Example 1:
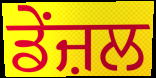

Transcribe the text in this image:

ਡੇਂਜ਼ਲ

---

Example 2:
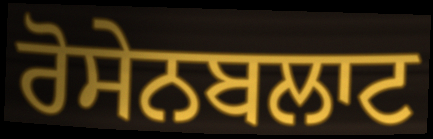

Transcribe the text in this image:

ਰੋਸੇਨਬਲਾਟ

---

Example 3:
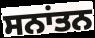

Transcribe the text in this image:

ਸਨਾਂਤਨ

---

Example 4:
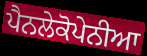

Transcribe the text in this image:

ਪੈਨਲੇਕੋਪੇਨੀਆ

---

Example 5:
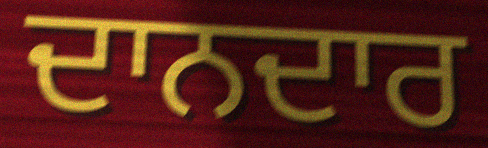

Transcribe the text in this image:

ਦਾਨਦਾਰ